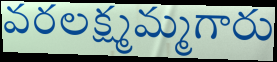
వరలక్ష్మమ్మగారు